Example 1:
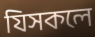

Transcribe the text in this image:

যিসকলে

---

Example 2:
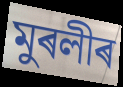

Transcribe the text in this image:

মুৰলীৰ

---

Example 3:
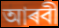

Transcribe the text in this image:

আৰবী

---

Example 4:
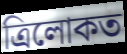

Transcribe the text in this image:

ত্ৰিলোকত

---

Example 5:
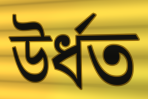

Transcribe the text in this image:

উৰ্ধত